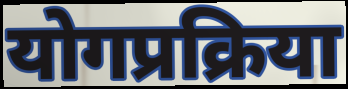
योगप्रक्रिया